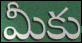
మీకు